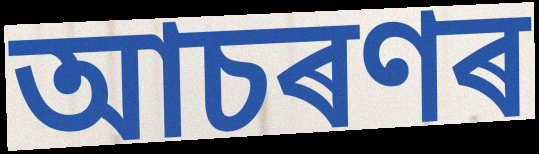
আচৰণৰ